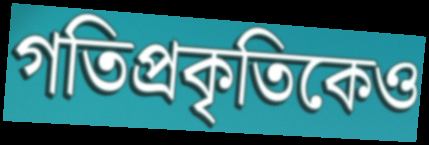
গতিপ্রকৃতিকেও